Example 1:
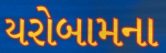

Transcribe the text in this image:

યરોબામના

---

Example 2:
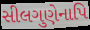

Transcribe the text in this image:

સીલગુણેનાપિ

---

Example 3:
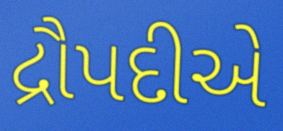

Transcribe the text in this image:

દ્રૌપદીએ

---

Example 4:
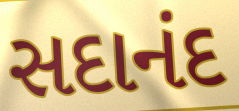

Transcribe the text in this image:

સદાનંદ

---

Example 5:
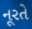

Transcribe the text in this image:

નૂરતે